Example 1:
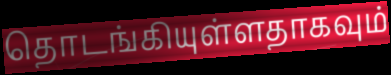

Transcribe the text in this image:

தொடங்கியுள்ளதாகவும்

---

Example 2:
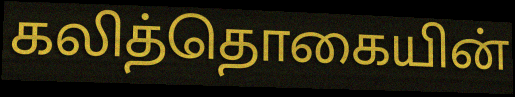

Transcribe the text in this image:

கலித்தொகையின்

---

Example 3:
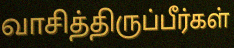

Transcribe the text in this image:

வாசித்திருப்பீர்கள்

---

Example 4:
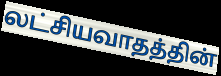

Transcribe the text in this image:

லட்சியவாதத்தின்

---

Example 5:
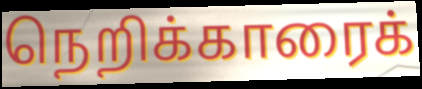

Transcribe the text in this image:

நெறிக்காரைக்